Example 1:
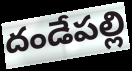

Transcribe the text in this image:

దండేపల్లి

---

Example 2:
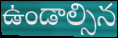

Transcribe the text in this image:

ఉండాల్సిన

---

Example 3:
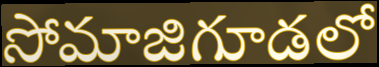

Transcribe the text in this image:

సోమాజిగూడలో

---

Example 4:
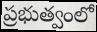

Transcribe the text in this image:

ప్రభుత్వంలో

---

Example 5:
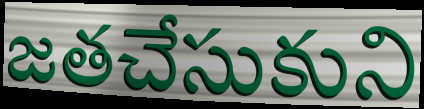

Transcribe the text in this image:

జతచేసుకుని